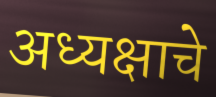
अध्यक्षाचे